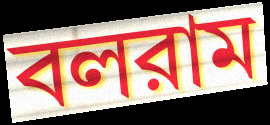
বলরাম